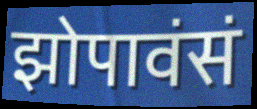
झोपावंसं